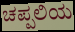
ಚಪ್ಪಲಿಯ